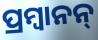
ପ୍ରମ୍ବାନନ୍